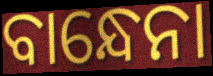
ବାନ୍ଧେନା